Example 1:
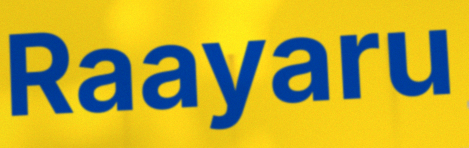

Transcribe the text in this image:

Raayaru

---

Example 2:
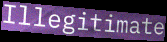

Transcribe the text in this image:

Illegitimate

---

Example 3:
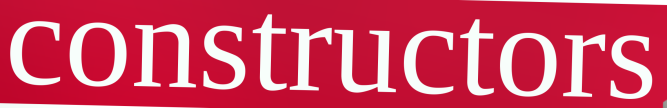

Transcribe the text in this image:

constructors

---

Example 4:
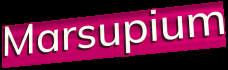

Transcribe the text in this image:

Marsupium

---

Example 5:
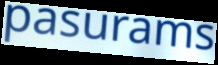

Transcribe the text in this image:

pasurams